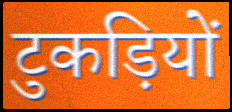
टुकड़ियों